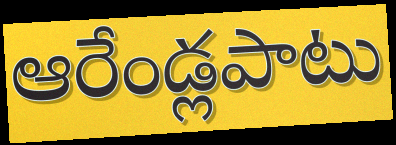
ఆరేండ్లపాటు